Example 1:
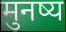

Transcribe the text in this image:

मुनष्य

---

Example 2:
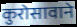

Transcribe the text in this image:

कुरोसावाने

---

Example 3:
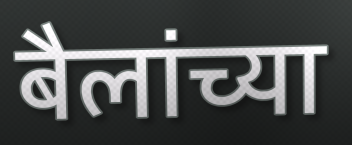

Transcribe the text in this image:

बैलांच्या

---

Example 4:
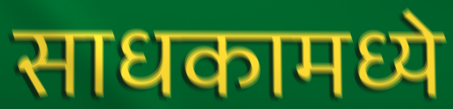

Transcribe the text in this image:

साधकामध्ये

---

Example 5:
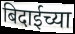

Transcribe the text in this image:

बिदाईच्या